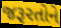
જરૂરતોને